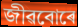
জীৱবোৰে